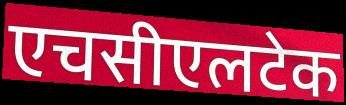
एचसीएलटेक